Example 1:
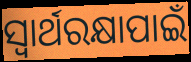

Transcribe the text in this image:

ସ୍ୱାର୍ଥରକ୍ଷାପାଇଁ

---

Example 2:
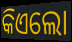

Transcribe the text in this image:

କିଏଲୋ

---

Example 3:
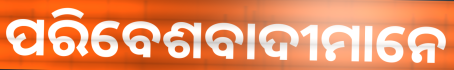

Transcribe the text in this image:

ପରିବେଶବାଦୀମାନେ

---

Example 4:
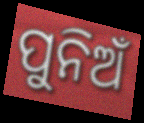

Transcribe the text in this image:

ପୁନିଅଁ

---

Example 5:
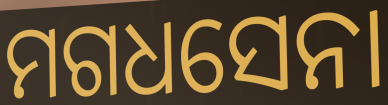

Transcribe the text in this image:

ମଗଧସେନା